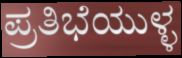
ಪ್ರತಿಭೆಯುಳ್ಳ